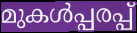
മുകൾപ്പരപ്പ്